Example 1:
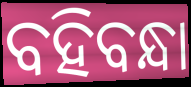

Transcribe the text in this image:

ବହିବନ୍ଧା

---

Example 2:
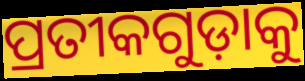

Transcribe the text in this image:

ପ୍ରତୀକଗୁଡ଼ାକୁ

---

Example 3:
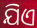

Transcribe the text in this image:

ଯିଏ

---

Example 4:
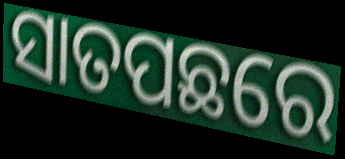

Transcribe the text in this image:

ସାତପଛରେ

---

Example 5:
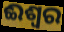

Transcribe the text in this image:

ଈଶ୍ବର